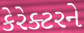
કેરેક્ટરને